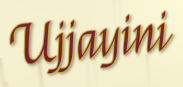
Ujjayini